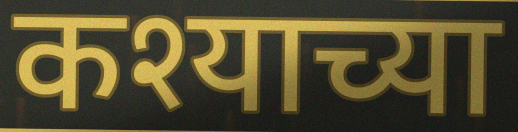
कश्याच्या